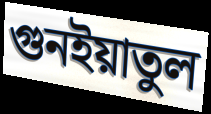
গুনইয়াতুল